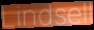
Lindsell